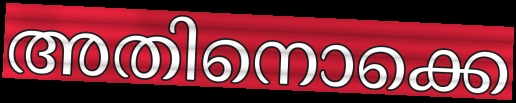
അതിനൊക്കെ